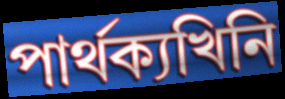
পাৰ্থক্যখিনি